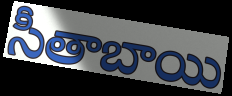
సీతాబాయి